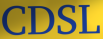
CDSL